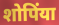
शोपिंया